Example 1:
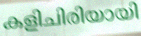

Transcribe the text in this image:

കളിചിരിയായി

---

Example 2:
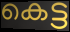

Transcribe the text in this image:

കെട്ട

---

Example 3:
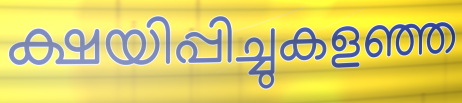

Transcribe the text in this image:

ക്ഷയിപ്പിച്ചുകളഞ്ഞ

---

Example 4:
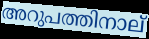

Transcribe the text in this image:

അറുപത്തിനാല്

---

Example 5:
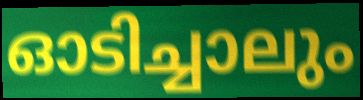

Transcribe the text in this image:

ഓടിച്ചാലും